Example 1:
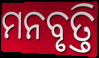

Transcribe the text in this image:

ମନବୃତ୍ତି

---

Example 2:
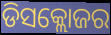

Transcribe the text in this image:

ଡିସକ୍ଲୋଜର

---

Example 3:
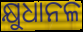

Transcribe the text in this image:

କ୍ଷୁଧାନଳ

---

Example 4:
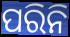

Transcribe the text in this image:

ପରିନି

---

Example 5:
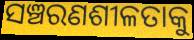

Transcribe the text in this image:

ସଞ୍ଚରଣଶୀଳତାକୁ